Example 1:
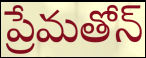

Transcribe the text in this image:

ప్రేమతోన్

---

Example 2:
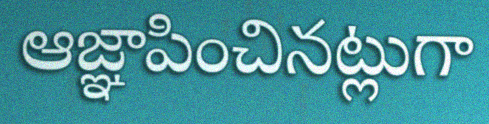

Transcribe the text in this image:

ఆజ్ఞాపించినట్లుగా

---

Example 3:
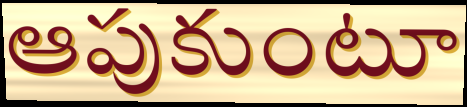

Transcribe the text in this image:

ఆపుకుంటూ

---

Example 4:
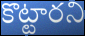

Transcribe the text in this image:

కొట్టారని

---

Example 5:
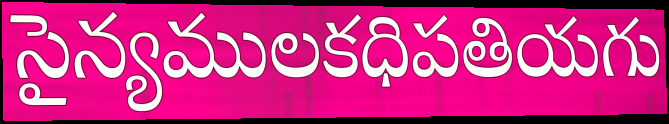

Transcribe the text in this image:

సైన్యములకధిపతియగు